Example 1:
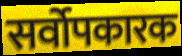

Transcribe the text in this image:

सर्वोपकारक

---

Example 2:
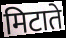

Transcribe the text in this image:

मिटाते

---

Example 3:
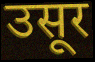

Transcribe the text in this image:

उसूर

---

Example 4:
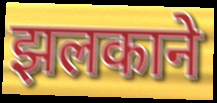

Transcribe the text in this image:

झलकाने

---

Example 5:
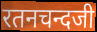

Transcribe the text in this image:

रतनचन्दजी